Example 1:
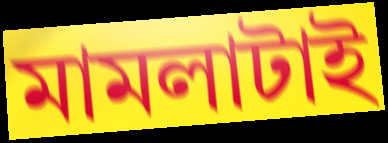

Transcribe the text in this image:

মামলাটাই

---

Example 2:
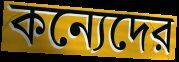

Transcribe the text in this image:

কন্যেদের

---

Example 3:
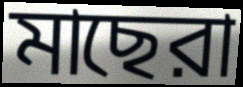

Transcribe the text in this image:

মাছেরা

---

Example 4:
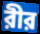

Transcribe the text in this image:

রীর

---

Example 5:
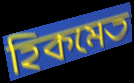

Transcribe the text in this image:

হিকমেত